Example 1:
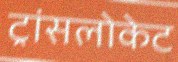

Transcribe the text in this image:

ट्रांसलोकेट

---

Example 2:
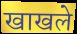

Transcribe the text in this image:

खाखले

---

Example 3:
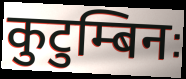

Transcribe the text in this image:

कुटुम्बिनः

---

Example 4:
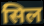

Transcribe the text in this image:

सिल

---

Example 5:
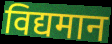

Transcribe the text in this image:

विद्यमान